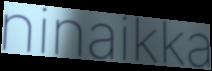
ninaikka